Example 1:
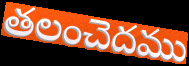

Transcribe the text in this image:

తలంచెదము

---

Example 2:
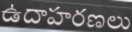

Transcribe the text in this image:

ఉదాహరణలు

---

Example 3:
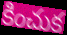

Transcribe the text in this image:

కించుక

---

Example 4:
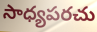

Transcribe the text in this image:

సాధ్యపరచు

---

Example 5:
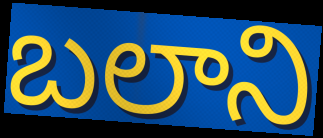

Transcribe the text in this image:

బలాని